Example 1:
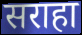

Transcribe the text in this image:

सराहा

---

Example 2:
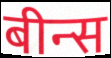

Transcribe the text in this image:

बीन्स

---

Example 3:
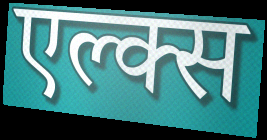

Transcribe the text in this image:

एल्क्स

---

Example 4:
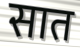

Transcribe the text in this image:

सात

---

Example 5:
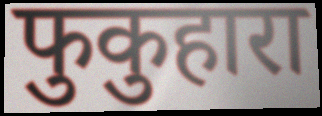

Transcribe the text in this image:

फुकुहारा